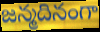
జన్మదినంగా